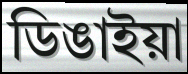
ডিঙাইয়া